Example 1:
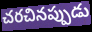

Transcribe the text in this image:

చరచినప్పుడు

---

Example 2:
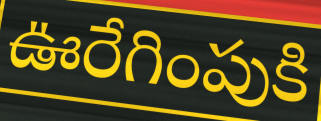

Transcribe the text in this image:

ఊరేగింపుకి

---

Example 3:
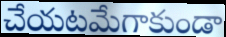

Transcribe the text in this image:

చేయటమేగాకుండా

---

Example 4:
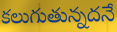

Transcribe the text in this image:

కలుగుతున్నదనే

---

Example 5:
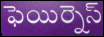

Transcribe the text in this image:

ఫెయిర్నెస్